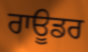
ਰਾਊਡਰ